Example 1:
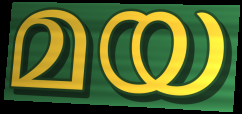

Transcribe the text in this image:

മയ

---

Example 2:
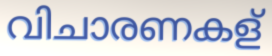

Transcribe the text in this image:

വിചാരണകള്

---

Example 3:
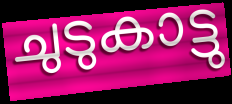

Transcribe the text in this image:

ചുടുകാട്ടു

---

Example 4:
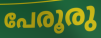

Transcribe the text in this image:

പേരൂരു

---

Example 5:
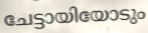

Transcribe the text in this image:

ചേട്ടായിയോടും